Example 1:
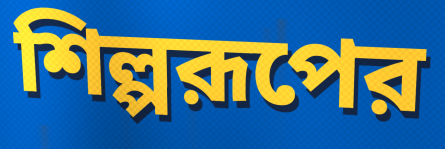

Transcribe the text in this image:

শিল্পরূপের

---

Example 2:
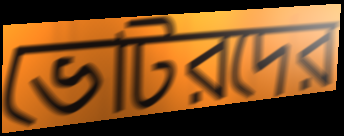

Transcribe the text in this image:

ভোটরদের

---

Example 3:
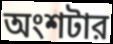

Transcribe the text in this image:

অংশটার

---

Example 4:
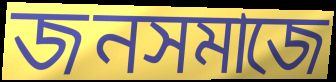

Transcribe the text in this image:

জনসমাজে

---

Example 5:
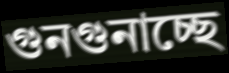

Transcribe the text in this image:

গুনগুনাচ্ছে